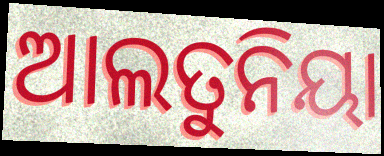
ଆଲତୁନିୟା